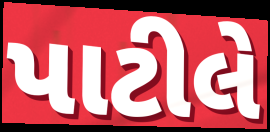
પાટીલે